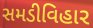
સમડીવિહાર